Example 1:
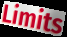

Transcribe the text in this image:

Limits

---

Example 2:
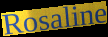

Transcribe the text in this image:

Rosaline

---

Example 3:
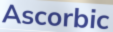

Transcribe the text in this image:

Ascorbic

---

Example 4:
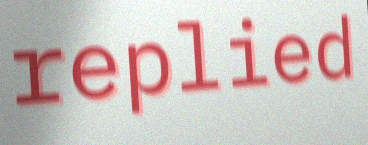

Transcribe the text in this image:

replied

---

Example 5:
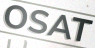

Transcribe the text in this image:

OSAT